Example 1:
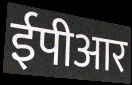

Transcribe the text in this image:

ईपीआर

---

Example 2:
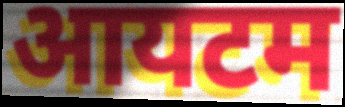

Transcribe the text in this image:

आयटम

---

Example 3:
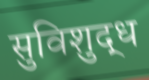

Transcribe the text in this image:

सुविशुद्ध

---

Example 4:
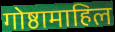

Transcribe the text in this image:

गोष्ठामाहिल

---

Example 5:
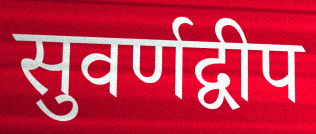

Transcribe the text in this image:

सुवर्णद्वीप